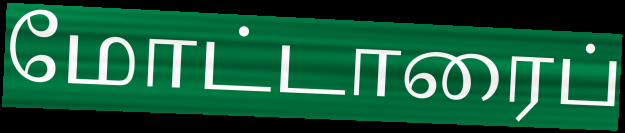
மோட்டாரைப்